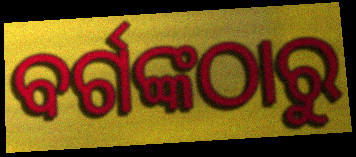
ବର୍ଗଙ୍କଠାରୁ